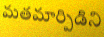
మతమార్పిడిని